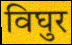
विघुर